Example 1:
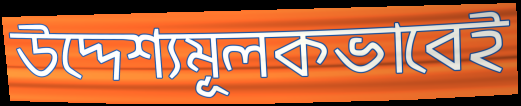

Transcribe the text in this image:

উদ্দেশ্যমূলকভাবেই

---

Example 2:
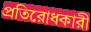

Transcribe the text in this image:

প্রতিরোধকারী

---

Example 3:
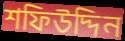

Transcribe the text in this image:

শফিউদ্দিন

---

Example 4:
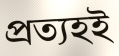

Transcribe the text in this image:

প্রত্যহই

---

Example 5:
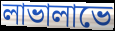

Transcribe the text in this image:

লাভালাভে